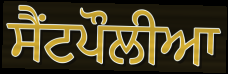
ਸੈਂਟਪੌਲੀਆ